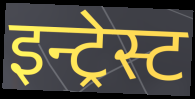
इन्ट्रेस्ट